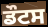
ਡੌਟਸ